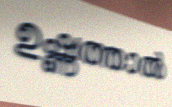
ഉഷ്ണത്താൽ